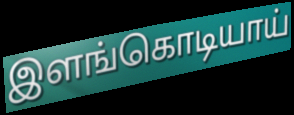
இளங்கொடியாய்